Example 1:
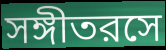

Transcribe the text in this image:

সঙ্গীতরসে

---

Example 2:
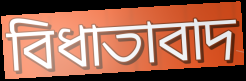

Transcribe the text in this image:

বিধাতাবাদ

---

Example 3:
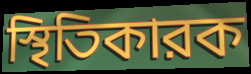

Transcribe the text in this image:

স্থিতিকারক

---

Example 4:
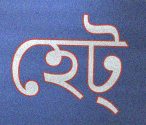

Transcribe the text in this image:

হেট্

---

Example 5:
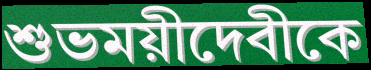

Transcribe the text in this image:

শুভময়ীদেবীকে